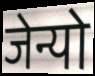
जेन्यो